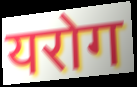
यरोग